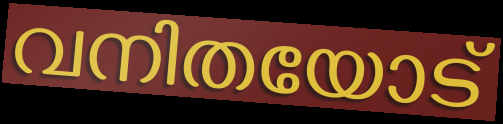
വനിതയോട്